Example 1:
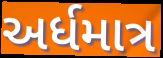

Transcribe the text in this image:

અર્ધમાત્ર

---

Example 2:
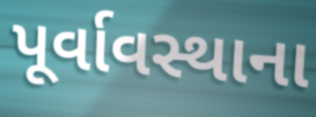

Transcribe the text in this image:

પૂર્વાવસ્થાના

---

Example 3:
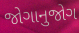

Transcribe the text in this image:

જોગાનુજોગ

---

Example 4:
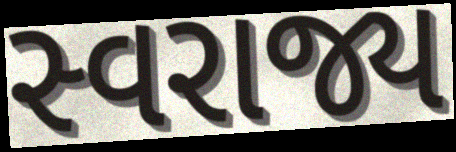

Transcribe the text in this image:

સ્વરાજ્ય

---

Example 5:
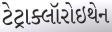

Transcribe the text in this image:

ટેટ્રાક્લૉરોઇથેન